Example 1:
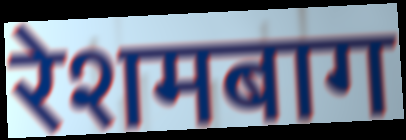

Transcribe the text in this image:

रेशमबाग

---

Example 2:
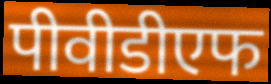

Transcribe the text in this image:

पीवीडीएफ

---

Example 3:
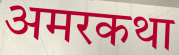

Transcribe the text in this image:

अमरकथा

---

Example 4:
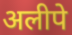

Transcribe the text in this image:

अलीपे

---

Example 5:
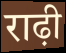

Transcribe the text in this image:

राढ़ी